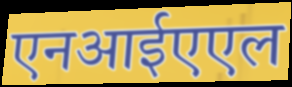
एनआईएएल